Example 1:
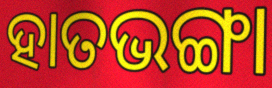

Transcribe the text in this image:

ହାତଭଙ୍ଗା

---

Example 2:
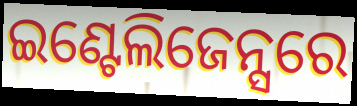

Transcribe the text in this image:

ଇଣ୍ଟେଲିଜେନ୍ସରେ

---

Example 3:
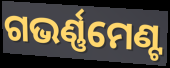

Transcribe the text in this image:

ଗଭର୍ଣ୍ଣମେଣ୍ଟ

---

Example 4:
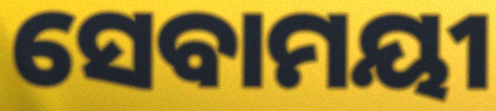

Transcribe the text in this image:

ସେବାମୟୀ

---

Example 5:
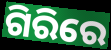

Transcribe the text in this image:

ଗିରିରେ